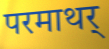
परमाथर्